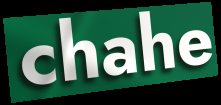
chahe